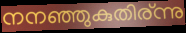
നനഞ്ഞുകുതിര്ന്നു